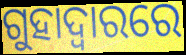
ଗୁହାଦ୍ଵାରରେ